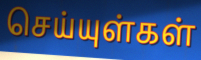
செய்யுள்கள்